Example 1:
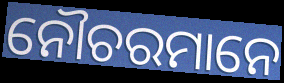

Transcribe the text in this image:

ନୌଚରମାନେ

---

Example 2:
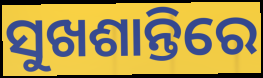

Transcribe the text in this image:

ସୁଖଶାନ୍ତିରେ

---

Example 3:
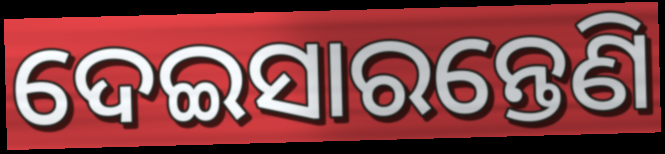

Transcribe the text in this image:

ଦେଇସାରନ୍ତେଣି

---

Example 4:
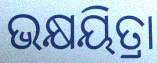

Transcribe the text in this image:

ଭକ୍ଷୟିତ୍ରା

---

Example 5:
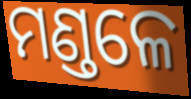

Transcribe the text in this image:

ମଣ୍ଡଳେ